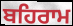
ਬਹਿਰਾਮ